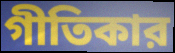
গীতিকার